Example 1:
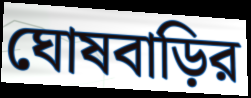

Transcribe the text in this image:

ঘোষবাড়ির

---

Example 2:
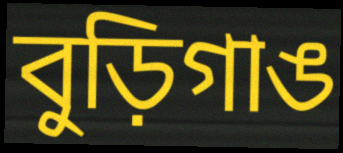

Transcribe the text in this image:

বুড়িগাঙ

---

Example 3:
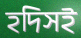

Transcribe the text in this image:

হদিসই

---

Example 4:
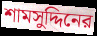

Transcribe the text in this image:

শামসুদ্দিনের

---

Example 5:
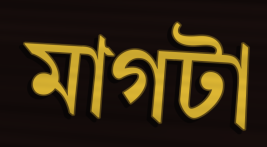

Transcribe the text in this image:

মাগটা